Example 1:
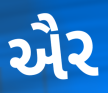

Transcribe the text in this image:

ઐર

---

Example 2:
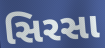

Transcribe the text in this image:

સિરસા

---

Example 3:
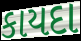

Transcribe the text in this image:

કાયદા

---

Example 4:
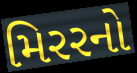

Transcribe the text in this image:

મિરરનો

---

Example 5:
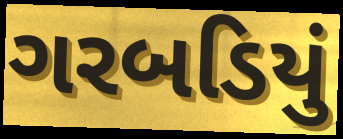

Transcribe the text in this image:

ગરબડિયું